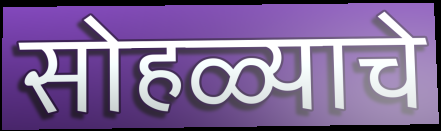
सोहळ्याचे